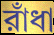
রাঁধা